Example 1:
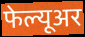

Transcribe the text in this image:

फेल्यूअर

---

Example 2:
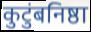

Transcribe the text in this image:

कुटुंबनिष्ठा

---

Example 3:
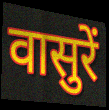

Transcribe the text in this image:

वासुरें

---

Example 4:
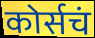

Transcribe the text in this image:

कोर्सचं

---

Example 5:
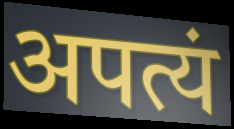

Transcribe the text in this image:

अपत्यं